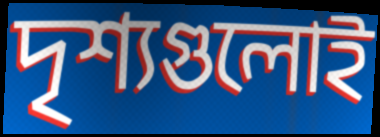
দৃশ্যগুলোই